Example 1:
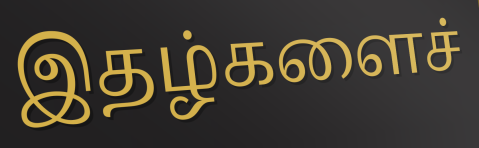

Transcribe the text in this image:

இதழ்களைச்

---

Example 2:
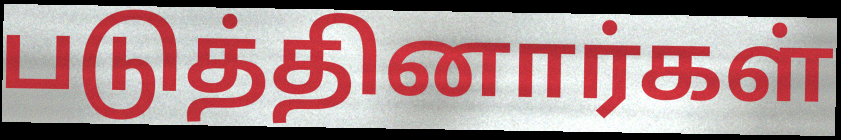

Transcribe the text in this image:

படுத்தினார்கள்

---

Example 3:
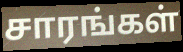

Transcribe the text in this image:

சாரங்கள்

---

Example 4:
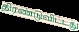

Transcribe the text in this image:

திரண்டுவிட்டது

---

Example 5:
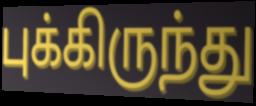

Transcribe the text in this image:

புக்கிருந்து